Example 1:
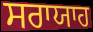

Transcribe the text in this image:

ਸਰਾਯਾਹ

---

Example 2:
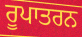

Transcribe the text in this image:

ਰੂਪਾਤਰਨ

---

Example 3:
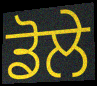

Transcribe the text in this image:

ਡੋਲੇ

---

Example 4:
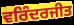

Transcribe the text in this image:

ਵਰਿੰਦਰਜੀਤ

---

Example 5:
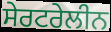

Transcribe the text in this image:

ਸੇਰਟਰੇਲੀਨ